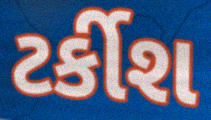
ટર્કીશ